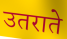
उतराते